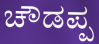
ಚೌಡಪ್ಪ